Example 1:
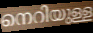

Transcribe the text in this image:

നെറിയുള്ള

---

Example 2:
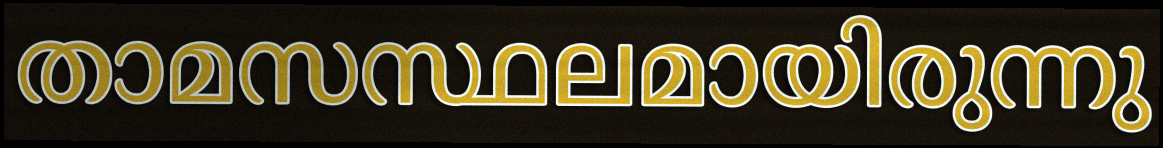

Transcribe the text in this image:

താമസസ്ഥലമായിരുന്നു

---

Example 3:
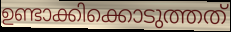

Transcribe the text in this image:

ഉണ്ടാക്കിക്കൊടുത്തത്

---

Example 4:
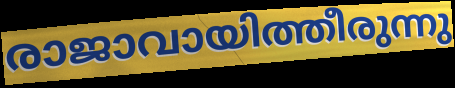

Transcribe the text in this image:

രാജാവായിത്തീരുന്നു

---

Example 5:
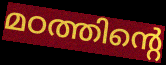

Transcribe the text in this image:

മഠത്തിന്റെ